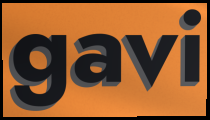
gavi